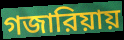
গজারিয়ায়